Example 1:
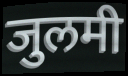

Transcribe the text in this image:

जुलमी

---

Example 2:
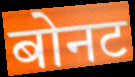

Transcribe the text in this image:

बोनट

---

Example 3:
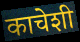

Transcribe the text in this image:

काचेशी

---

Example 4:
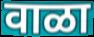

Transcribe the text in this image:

वाळा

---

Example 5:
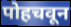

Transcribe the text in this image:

पोहचवून